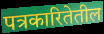
पत्रकारितेतील